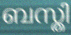
ബസ്തി